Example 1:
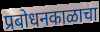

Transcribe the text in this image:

प्रबोधनकाळाचा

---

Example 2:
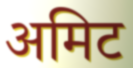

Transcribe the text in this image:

अमिट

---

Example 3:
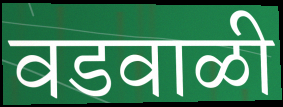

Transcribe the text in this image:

वडवाळी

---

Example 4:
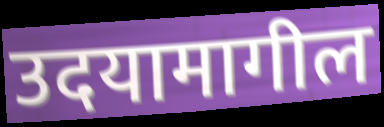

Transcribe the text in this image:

उदयामागील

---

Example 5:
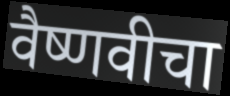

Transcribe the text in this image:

वैष्णवीचा